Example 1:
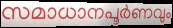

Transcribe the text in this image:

സമാധാനപൂർണവും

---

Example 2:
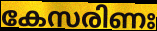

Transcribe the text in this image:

കേസരിണഃ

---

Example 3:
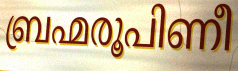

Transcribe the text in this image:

ബ്രഹ്മരൂപിണീ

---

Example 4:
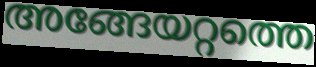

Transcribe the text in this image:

അങ്ങേയറ്റത്തെ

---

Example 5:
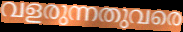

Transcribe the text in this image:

വളരുന്നതുവരെ